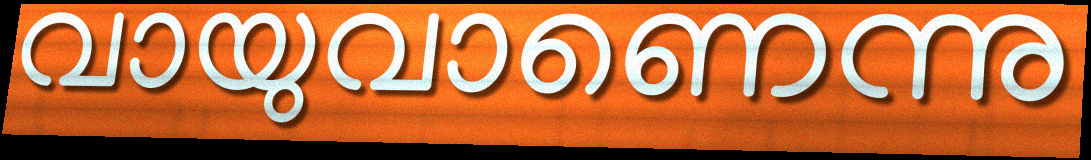
വായുവാണെന്നു